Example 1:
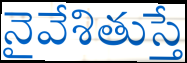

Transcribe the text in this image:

నైవేశితుస్తే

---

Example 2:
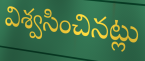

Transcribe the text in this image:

విశ్వసించినట్లు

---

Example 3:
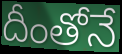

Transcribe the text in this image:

దీంతోనే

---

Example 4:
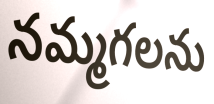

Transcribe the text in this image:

నమ్మగలను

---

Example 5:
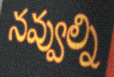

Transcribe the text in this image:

నవ్వుల్ని